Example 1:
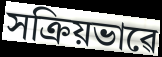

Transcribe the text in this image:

সক্ৰিয়ভাৱে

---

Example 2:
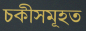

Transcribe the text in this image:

চকীসমূহত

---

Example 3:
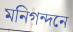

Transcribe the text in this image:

মনিগন্দনে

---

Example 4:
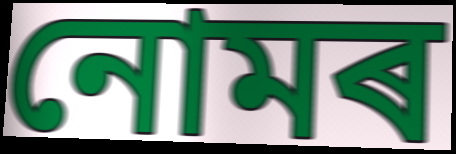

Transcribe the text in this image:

নোমৰ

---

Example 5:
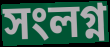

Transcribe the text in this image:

সংলগ্ন